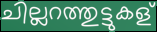
ചില്ലറത്തുട്ടുകള്